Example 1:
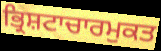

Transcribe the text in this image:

ਭ੍ਰਿਸ਼ਟਾਚਾਰਮੁਕਤ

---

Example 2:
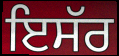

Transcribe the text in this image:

ਇਸੱਰ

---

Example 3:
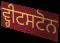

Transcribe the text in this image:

ਵ੍ਹੀਟਸਟੋਨ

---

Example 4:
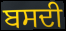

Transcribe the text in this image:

ਬਸਦੀ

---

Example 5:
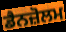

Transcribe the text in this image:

ਡੈਨਜ਼ੋਲਮ